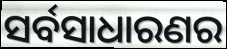
ସର୍ବସାଧାରଣର